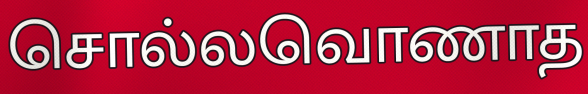
சொல்லவொணாத